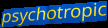
psychotropic